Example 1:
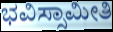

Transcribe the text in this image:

ಭವಿಸ್ಸಾಮೀತಿ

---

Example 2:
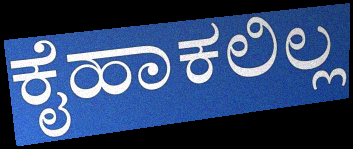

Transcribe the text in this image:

ಕೈಹಾಕಲಿಲ್ಲ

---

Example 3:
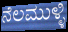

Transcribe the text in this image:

ನೆಲಮುಳ್ಳಿ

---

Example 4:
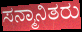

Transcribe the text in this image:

ಸನ್ಮಾನಿತರು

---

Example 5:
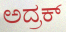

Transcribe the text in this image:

ಅದ್ರಕ್